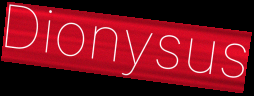
Dionysus